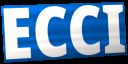
ECCI